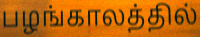
பழங்காலத்தில்